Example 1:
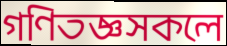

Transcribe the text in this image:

গণিতজ্ঞসকলে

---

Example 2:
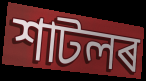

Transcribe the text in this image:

শাটলৰ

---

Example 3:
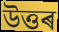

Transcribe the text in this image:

উত্তৰ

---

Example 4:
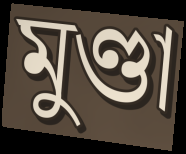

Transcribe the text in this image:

মুণ্ডা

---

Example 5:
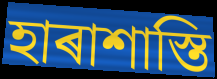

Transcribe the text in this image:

হাৰাশাস্তি